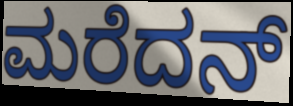
ಮರೆದನ್